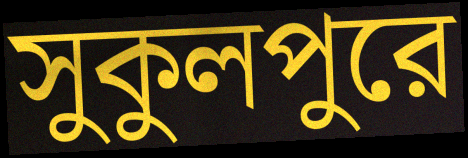
সুকুলপুরে